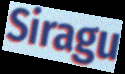
Siragu